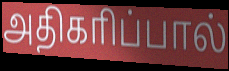
அதிகரிப்பால்